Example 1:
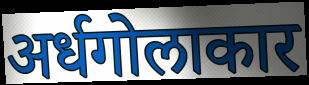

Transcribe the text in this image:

अर्धगोलाकार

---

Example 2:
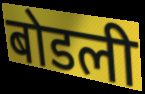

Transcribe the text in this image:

बोडली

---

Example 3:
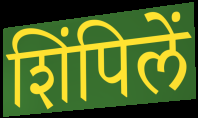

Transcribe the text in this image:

शिंपिलें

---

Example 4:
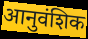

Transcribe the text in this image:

आनुवंशिक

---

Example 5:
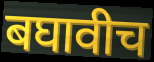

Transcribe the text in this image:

बघावीच